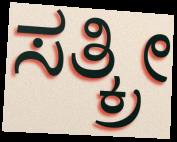
ಸತ್ಕ್ರೀ